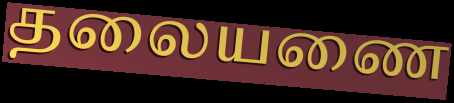
தலையணை